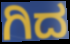
ಗಿದ